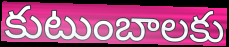
కుటుంబాలకు